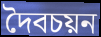
দৈবচয়ন